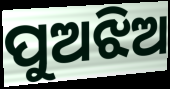
ପୁଅଝିଅ